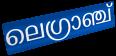
ലെഗ്രാഞ്ച്